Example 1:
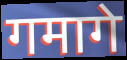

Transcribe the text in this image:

गमागे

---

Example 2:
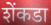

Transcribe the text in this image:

शेंकडा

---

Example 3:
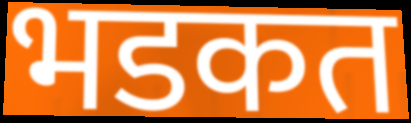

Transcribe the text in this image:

भडकत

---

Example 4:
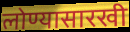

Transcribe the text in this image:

लोण्यासारखी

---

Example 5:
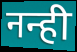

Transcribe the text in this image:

नन्ही